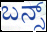
ಬನ್ಸ್